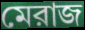
মেরাজ